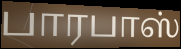
பாரபாஸ்